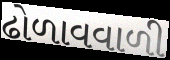
ઢોળાવવાળી